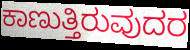
ಕಾಣುತ್ತಿರುವುದರ